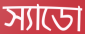
স্যাডো